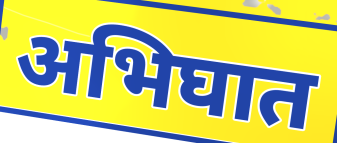
अभिघात